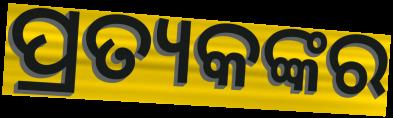
ପ୍ରତ୍ୟକଙ୍କର